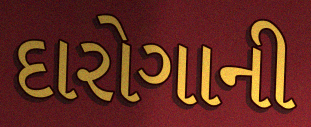
દારોગાની